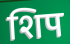
शिप